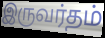
இருவர்தம்